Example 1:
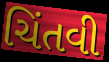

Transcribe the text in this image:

ચિંતવી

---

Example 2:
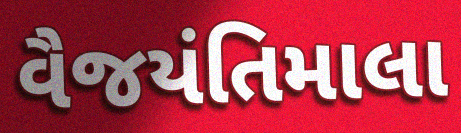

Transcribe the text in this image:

વૈજયંતિમાલા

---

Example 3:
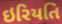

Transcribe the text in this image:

ઇરિયતિ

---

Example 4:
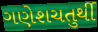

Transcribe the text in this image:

ગણેશચતુર્થી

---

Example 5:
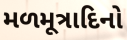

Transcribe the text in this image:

મળમૂત્રાદિનો